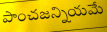
పాంచజన్నియమే